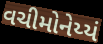
વચીમોનેય્યં